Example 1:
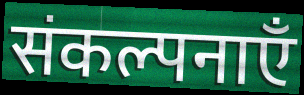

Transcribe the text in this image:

संकल्पनाएँ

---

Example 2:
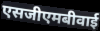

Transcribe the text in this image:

एसजीएमबीवाई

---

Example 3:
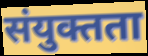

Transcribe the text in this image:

संयुक्तता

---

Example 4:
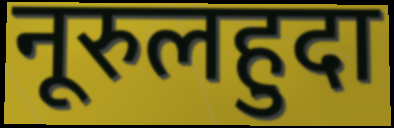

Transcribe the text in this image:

नूरुलहुदा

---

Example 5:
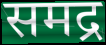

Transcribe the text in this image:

समद्र